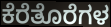
ಕೆರೆತೊರೆಗಳ